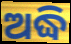
ଅଦ୍ଧି